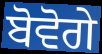
ਬੋਵੋਗੇ